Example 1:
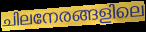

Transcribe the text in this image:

ചിലനേരങ്ങളിലെ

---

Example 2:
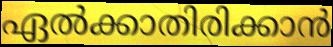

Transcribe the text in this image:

ഏൽക്കാതിരിക്കാൻ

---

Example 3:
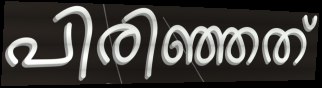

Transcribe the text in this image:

പിരിഞ്ഞത്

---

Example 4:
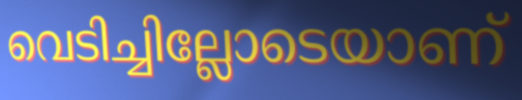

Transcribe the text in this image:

വെടിച്ചില്ലോടെയാണ്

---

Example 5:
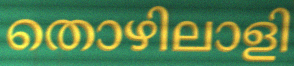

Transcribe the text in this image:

തൊഴിലാളി